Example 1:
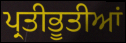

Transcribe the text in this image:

ਪ੍ਰਤੀਭੂਤੀਆਂ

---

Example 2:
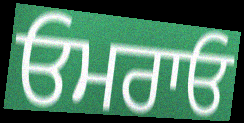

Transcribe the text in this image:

ਓਮਰਾਓ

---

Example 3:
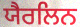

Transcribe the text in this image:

ਯੈਰਲਿਨ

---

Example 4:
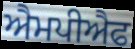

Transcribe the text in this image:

ਐਮਪੀਐਫ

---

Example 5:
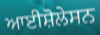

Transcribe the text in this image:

ਆਈਸ਼ੋਲੇਸਨ